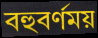
বহুবর্ণময়